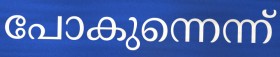
പോകുന്നെന്ന്